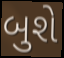
બુશે